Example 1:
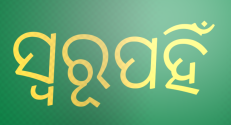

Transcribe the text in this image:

ସ୍ୱରୂପହିଁ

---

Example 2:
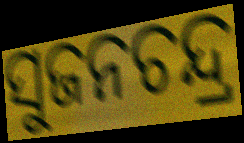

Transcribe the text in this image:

ସୁଜନଚନ୍ଦ୍ର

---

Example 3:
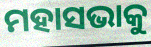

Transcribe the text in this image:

ମହାସଭାକୁ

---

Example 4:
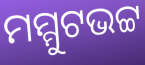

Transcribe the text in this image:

ମମ୍ମୁଟଭଟ୍ଟ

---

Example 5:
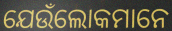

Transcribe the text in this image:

ଯେଉଁଲୋକମାନେ